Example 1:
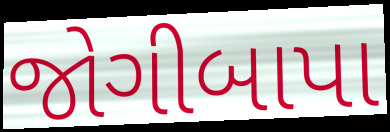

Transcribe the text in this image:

જોગીબાપા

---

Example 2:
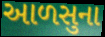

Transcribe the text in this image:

આળસુના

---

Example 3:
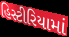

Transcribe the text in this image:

હિસ્ટીરિયામાં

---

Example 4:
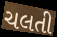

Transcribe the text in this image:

ચલતી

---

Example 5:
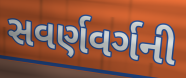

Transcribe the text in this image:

સવર્ણવર્ગની